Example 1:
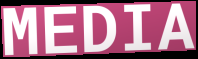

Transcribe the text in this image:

MEDIA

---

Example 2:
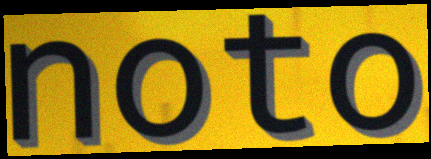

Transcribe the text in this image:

noto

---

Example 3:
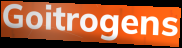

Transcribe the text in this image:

Goitrogens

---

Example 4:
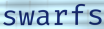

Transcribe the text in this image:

swarfs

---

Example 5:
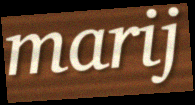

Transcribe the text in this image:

marij